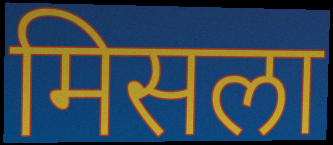
मिसला